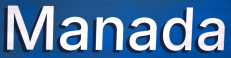
Manada